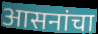
आसनांचा